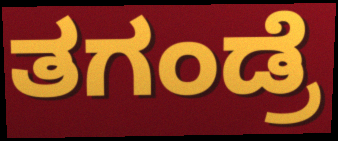
ತಗಂಡ್ರೆ